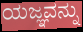
ಯಜ್ಞವನ್ನು